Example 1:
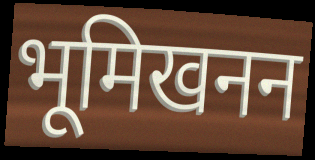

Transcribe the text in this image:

भूमिखनन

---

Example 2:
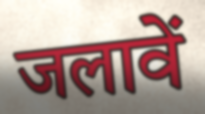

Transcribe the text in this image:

जलावें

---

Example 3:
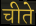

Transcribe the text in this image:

चीते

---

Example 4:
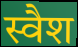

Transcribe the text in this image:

स्वैश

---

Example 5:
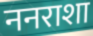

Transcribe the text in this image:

ननराशा